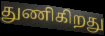
துணிகிறது